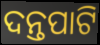
ଦନ୍ତପାଟି